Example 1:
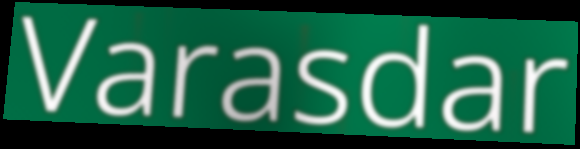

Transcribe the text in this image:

Varasdar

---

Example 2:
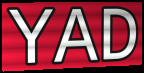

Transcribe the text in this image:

YAD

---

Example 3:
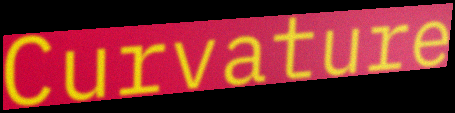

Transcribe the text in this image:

Curvature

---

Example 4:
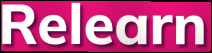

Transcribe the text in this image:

Relearn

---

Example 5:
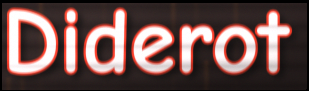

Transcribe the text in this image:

Diderot